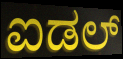
ಐಡಲ್